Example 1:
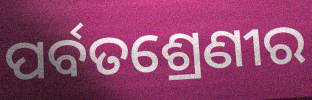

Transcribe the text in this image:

ପର୍ବତଶ୍ରେଣୀର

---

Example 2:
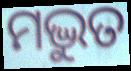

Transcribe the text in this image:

ମଦ୍ଭୁତ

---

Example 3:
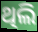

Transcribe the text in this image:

ଥିଲି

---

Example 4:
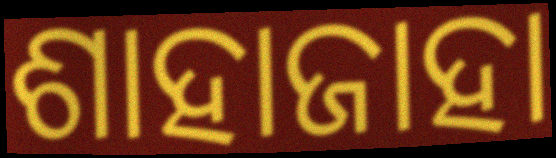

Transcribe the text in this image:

ଶାହାଜାହା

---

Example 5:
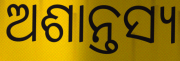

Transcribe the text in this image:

ଅଶାନ୍ତସ୍ୟ